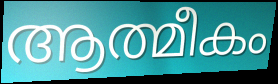
ആത്മീകം